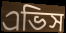
এভিস